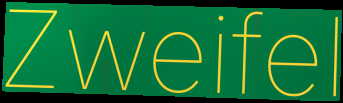
Zweifel